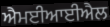
ਐਮਈਆਈਐਲ